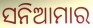
ସନିଆମାର